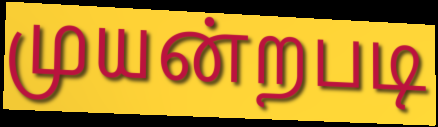
முயன்றபடி